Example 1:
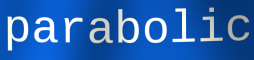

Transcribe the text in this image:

parabolic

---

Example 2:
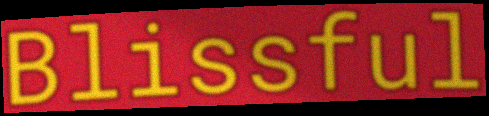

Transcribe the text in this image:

Blissful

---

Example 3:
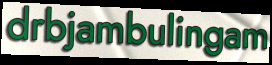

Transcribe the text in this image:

drbjambulingam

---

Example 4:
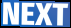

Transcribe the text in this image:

NEXT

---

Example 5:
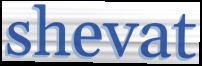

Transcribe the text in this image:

shevat